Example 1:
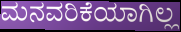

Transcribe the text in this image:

ಮನವರಿಕೆಯಾಗಿಲ್ಲ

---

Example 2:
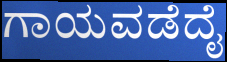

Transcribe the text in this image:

ಗಾಯವಡೆದೈ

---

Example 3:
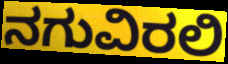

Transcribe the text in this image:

ನಗುವಿರಲಿ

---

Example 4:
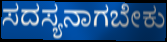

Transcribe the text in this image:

ಸದಸ್ಯನಾಗಬೇಕು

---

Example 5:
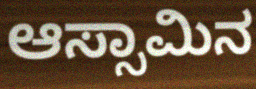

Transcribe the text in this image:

ಆಸ್ಸಾಮಿನ